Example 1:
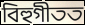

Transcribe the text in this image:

বিহুগীতত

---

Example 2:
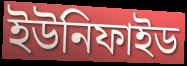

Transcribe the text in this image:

ইউনিফাইড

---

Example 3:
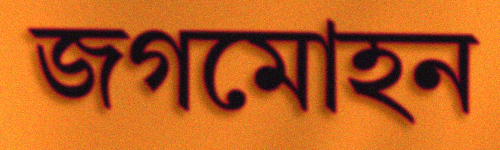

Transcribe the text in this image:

জগমোহন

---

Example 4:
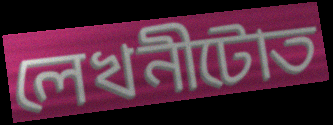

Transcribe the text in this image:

লেখনীটোত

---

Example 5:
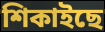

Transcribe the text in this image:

শিকাইছে